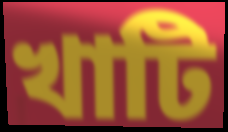
খাটি